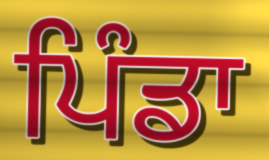
ਪਿੰਡਾ